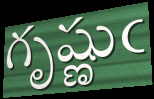
గృష్ణుఁ